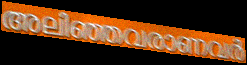
അലിഞ്ഞവരാണവർ